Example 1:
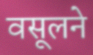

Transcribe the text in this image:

वसूलने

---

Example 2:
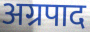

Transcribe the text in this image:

अग्रपाद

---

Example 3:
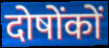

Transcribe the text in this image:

दोषोंकों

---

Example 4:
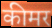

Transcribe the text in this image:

कीमर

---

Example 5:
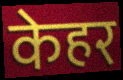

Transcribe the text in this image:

केहर